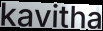
kavitha